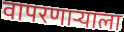
वापरणार्‍याला